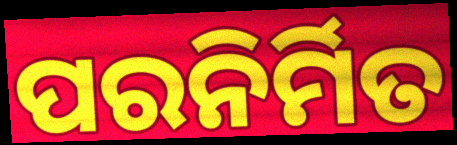
ପରନିର୍ମିତ